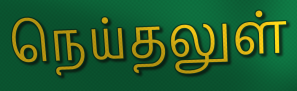
நெய்தலுள்